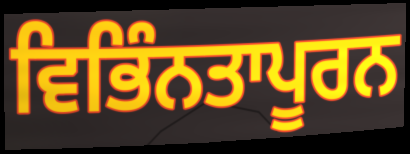
ਵਿਭਿੰਨਤਾਪੂਰਨ